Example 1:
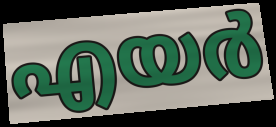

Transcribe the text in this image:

എയർ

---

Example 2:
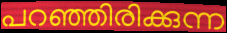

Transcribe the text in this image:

പറഞ്ഞിരിക്കുന്ന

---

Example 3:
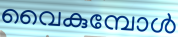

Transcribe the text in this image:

വൈകുമ്പോൾ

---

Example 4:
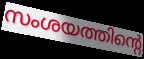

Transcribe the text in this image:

സംശയത്തിന്റെ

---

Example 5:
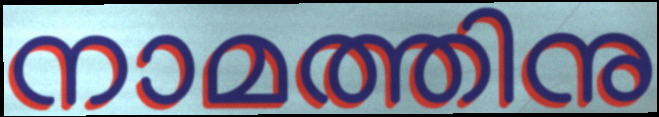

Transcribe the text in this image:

നാമത്തിനു